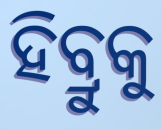
ହିବ୍ରୁକୁ